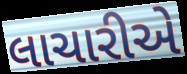
લાચારીએ